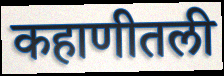
कहाणीतली